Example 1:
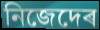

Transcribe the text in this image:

নিজেদেৰ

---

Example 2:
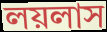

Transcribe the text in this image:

লয়লাস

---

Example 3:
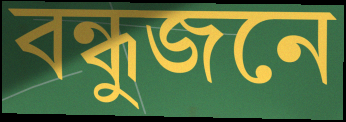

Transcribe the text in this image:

বন্ধুজনে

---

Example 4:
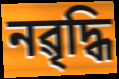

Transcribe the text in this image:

নৱৃদ্ধি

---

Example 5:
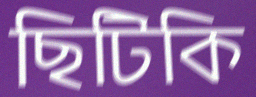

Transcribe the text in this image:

ছিটিকি